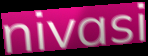
nivasi